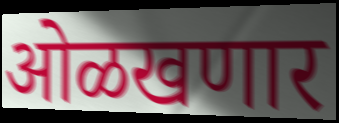
ओळखणार